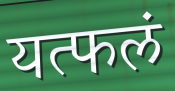
यत्फलं